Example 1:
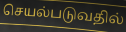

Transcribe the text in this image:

செயல்படுவதில்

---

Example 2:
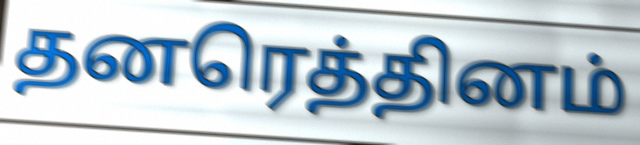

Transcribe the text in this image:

தனரெத்தினம்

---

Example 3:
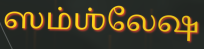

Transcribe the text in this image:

ஸம்ஶ்லேஷ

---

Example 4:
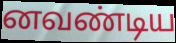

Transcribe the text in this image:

னவண்டிய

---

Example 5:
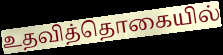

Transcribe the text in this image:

உதவித்தொகையில்